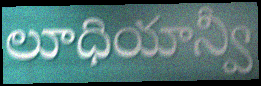
లూధియాన్వీ